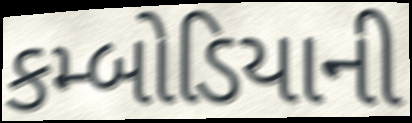
કમ્બોડિયાની